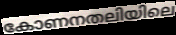
കോണനതലിയിലെ